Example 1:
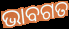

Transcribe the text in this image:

ଭାବଗତ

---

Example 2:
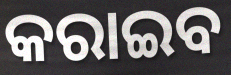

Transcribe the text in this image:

କରାଇବ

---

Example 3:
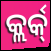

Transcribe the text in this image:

କ୍ଲର୍କ୍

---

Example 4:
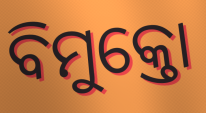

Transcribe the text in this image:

ବିମୁକ୍ତୋ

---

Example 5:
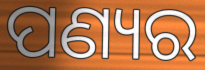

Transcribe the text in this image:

ପଣ୍ୟର